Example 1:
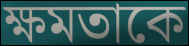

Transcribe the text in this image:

ক্ষমতাকে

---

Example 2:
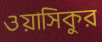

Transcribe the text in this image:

ওয়াসিকুর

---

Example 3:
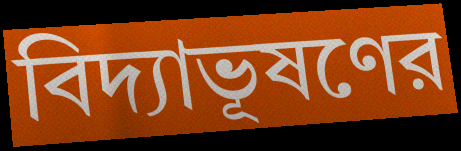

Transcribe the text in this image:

বিদ্যাভূষণের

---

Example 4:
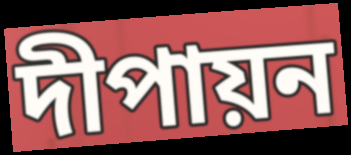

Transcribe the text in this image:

দীপায়ন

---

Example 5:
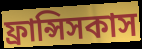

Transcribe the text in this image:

ফ্রান্সিসকাস